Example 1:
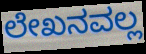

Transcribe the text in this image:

ಲೇಖನವಲ್ಲ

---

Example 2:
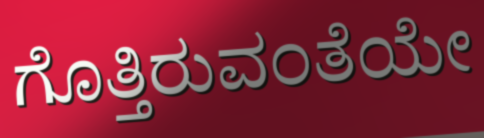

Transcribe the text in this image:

ಗೊತ್ತಿರುವಂತೆಯೇ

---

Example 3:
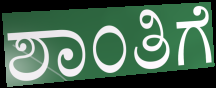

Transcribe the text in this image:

ಶಾಂತಿಗೆ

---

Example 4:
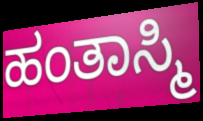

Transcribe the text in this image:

ಹಂತಾಸ್ಮಿ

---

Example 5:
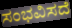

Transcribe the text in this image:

ಸಂಭವಿಸದೆ